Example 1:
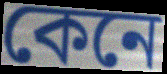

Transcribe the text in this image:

কেনে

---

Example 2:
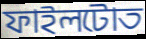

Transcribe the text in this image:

ফাইলটোত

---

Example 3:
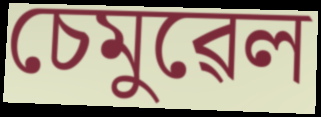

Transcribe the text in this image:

চেমুৱেল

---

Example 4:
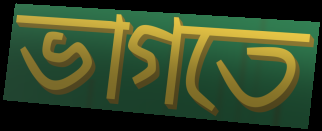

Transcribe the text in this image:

ভাগতে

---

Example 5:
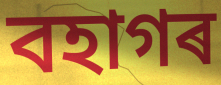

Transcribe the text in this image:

বহাগৰ